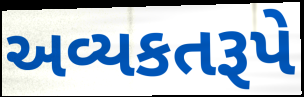
અવ્યકતરૂપે